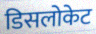
डिसलोकेट